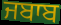
ਜਬਾਬ